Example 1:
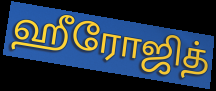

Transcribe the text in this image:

ஹீரோஜித்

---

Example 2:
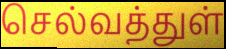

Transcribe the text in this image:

செல்வத்துள்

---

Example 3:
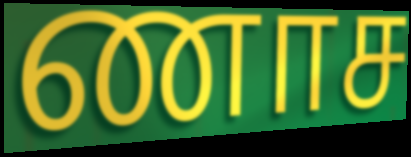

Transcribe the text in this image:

ணாச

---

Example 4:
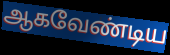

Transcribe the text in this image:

ஆகவேண்டிய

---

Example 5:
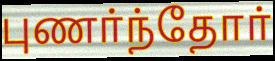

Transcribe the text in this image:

புணர்ந்தோர்